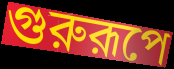
গুরুরূপে